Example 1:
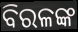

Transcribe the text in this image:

ବିରଳଙ୍କ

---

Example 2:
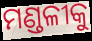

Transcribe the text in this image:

ମଣ୍ଡଳୀକୁ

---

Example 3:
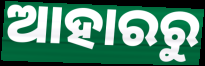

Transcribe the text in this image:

ଆହାରରୁ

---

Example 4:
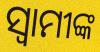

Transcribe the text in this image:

ସ୍ଵାମୀଙ୍କ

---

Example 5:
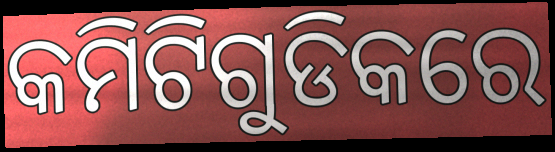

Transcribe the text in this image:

କମିଟିଗୁଡିକରେ